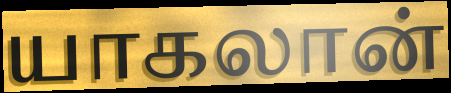
யாகலான்